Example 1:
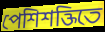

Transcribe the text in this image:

পেশিশক্তিতে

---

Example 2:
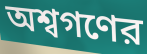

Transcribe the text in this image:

অশ্বগণের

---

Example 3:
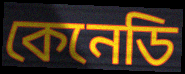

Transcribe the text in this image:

কেনেডি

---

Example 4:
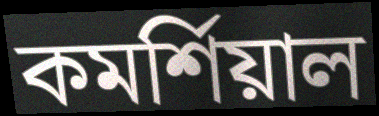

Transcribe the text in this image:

কমর্শিয়াল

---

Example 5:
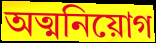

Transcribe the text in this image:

অত্মনিয়োগ